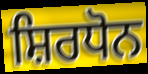
ਸ਼ਿਰਧੋਨ